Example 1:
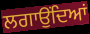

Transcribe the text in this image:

ਲਗਾਉੰਦਿਆਂ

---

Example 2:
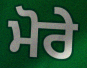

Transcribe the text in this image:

ਮੋਰੇ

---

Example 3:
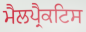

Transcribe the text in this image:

ਮੈਲਪ੍ਰੈਕਟਿਸ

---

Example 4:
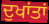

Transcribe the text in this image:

ਦੁਖਾਂਤਾਂ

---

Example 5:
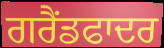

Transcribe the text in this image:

ਗਰੈਂਡਫਾਦਰ